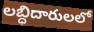
లబ్ధిదారులలో